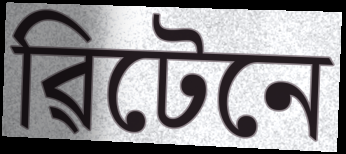
ৱিটেনে